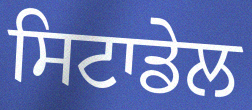
ਸਿਟਾਡੇਲ